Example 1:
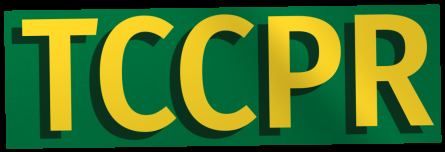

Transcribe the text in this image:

TCCPR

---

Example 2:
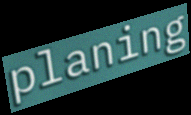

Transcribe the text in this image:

planing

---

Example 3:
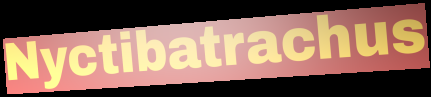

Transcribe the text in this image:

Nyctibatrachus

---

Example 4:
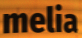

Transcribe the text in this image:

melia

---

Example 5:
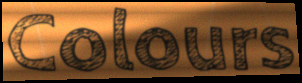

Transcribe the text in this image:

Colours